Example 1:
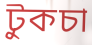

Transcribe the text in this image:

টুকচা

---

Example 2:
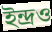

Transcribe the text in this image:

ইন্দ্রও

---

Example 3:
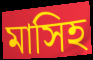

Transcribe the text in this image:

মাসিহ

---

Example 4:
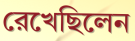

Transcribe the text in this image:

রেখেছিলেন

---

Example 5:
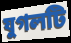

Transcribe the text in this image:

যুগলটি